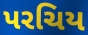
પરચિય